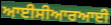
ਆਈਸੀਆਰਆਈ